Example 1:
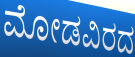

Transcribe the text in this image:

ಮೋಡವಿರದ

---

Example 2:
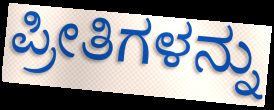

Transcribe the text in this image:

ಪ್ರೀತಿಗಳನ್ನು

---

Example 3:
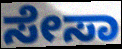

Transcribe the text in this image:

ಸೇಸಾ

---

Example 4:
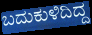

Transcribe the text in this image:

ಬದುಕುಳಿದಿದ್ದ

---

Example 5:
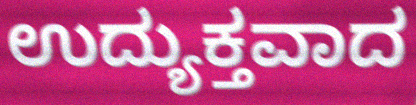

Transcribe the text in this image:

ಉದ್ಯುಕ್ತವಾದ